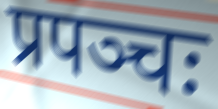
प्रपञ्चः